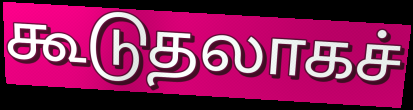
கூடுதலாகச்